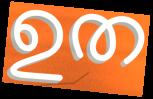
ഉത